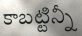
కాబట్టిన్నీ